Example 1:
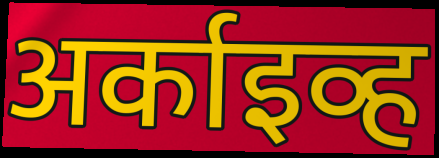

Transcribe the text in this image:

अर्काइव्ह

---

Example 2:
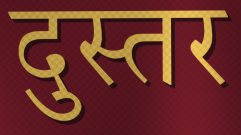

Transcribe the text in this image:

दुस्तर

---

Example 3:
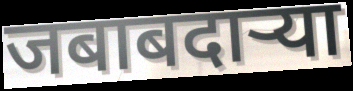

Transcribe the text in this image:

जबाबदार्‍या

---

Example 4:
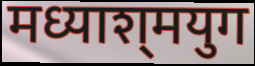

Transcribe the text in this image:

मध्याश्मयुग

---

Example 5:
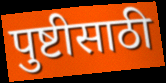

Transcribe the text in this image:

पुष्टीसाठी